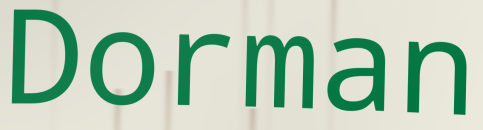
Dorman